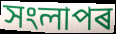
সংলাপৰ